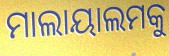
ମାଲାୟାଲମକୁ